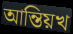
আন্তিয়খ